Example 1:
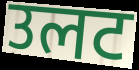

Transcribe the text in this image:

उलट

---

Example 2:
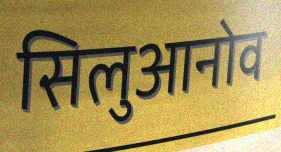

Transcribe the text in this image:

सिलुआनोव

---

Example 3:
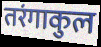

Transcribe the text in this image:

तरंगाकुल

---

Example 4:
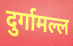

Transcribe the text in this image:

दुर्गामल्ल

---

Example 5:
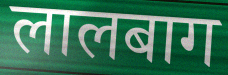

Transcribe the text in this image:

लालबाग